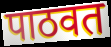
पाठवत